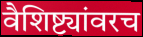
वैशिष्ट्यांवरच